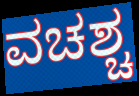
ವಚಶ್ಚ